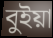
বুইয়া